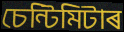
চেন্টিমিটাৰ